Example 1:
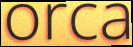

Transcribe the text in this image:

orca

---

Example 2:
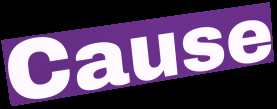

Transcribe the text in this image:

Cause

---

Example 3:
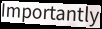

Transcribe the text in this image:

Importantly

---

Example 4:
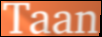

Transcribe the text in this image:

Taan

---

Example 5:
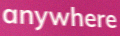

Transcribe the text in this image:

anywhere